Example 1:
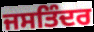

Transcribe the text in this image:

ਜਸਤਿੰਦਰ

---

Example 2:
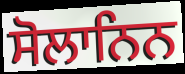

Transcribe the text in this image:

ਸੋਲਾਨਿਨ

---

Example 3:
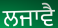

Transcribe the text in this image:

ਲਜਾਵੈ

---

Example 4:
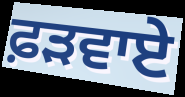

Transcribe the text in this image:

ਫ਼ੜਵਾਏ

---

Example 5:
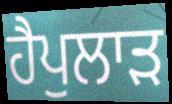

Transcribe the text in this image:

ਹੈਪੁਲਾੜ